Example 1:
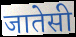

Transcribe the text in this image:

जातेसी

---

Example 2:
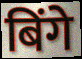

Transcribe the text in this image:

बिंगे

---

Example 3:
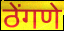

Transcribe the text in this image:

ठेंगणे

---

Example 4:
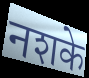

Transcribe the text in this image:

नशके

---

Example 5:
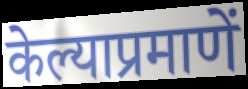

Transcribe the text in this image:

केल्याप्रमाणें